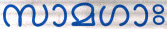
സാമഗാഃ